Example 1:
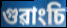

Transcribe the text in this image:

গুৱাংচি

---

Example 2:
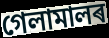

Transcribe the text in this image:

গেলামালৰ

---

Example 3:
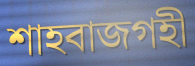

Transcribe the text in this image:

শাহবাজগহী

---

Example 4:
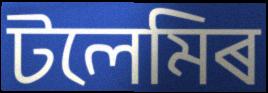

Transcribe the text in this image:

টলেমিৰ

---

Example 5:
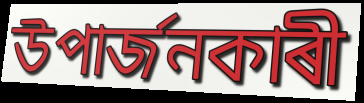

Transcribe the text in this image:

উপাৰ্জনকাৰী